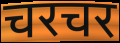
चरचर